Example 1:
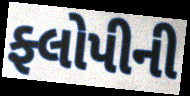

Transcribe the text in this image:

ફ્લોપીની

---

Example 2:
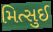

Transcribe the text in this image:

મિત્સુઈ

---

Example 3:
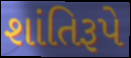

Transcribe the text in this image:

શાંતિરૂપે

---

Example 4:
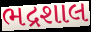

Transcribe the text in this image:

ભદ્રશાલ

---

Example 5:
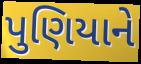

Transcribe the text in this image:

પુણિયાને